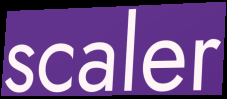
scaler